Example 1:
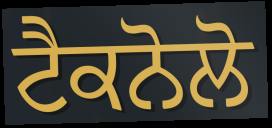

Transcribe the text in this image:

ਟੈਕਨੋਲੋ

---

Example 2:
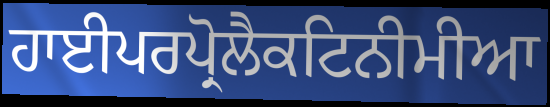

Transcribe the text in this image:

ਹਾਈਪਰਪ੍ਰੋਲੈਕਟਿਨੀਮੀਆ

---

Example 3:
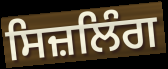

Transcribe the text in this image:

ਸਿਜ਼ਲਿੰਗ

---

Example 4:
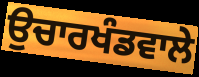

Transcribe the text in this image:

ਉਚਾਰਖੰਡਵਾਲੇ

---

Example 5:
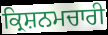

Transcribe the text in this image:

ਕ੍ਰਿਸ਼ਨਮਚਾਰੀ